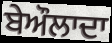
ਬੇਔਲਾਦਾ